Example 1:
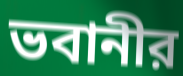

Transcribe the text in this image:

ভবানীর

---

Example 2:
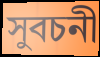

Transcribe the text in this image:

সুবচনী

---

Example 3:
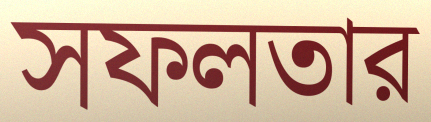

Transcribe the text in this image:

সফলতার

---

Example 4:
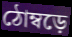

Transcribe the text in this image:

ঠোম্বড়ে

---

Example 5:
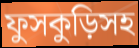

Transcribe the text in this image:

ফুসকুড়িসহ